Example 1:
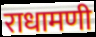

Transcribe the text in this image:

राधामणी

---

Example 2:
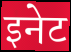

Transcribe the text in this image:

इनेट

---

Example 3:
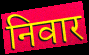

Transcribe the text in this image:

निवार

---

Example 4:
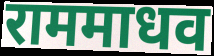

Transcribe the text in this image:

राममाधव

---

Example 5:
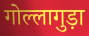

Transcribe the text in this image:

गोल्लागुड़ा